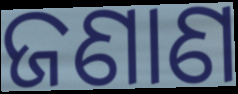
ଜଣାଣ